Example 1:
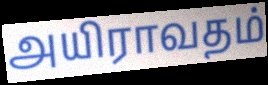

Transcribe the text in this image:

அயிராவதம்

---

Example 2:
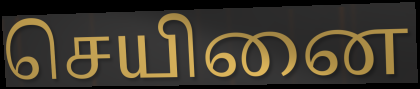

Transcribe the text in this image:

செயினை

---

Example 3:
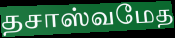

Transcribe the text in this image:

தசாஸ்வமேத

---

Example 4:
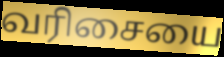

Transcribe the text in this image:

வரிசையை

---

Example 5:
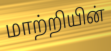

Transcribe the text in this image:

மாற்றியின்